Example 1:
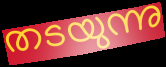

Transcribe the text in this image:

തടയുന്നു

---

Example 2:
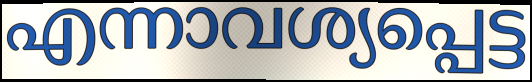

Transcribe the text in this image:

എന്നാവശ്യപ്പെട്ട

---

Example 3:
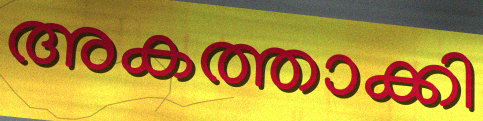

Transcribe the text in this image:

അകത്താക്കി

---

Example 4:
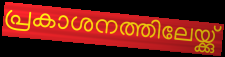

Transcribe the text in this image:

പ്രകാശനത്തിലേയ്ക്കു്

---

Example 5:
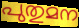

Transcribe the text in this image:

പുതുമന